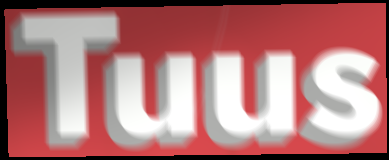
Tuus